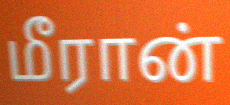
மீரான்